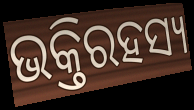
ଭକ୍ତିରହସ୍ୟ